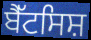
ਬੈੱਟਸਿਸ਼